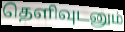
தெளிவுடனும்